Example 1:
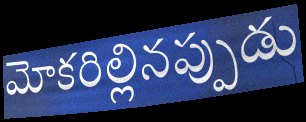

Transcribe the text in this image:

మోకరిల్లినప్పుడు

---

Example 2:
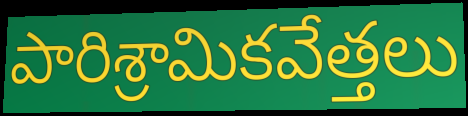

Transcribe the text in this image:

పారిశ్రామికవేత్తలు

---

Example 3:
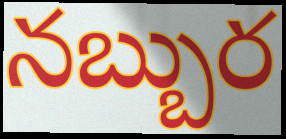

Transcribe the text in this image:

నబ్బుర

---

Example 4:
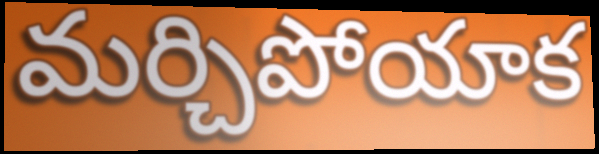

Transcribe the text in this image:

మర్చిపోయాక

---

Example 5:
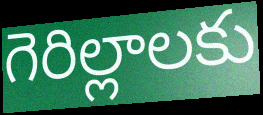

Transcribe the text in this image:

గెరిల్లాలకు